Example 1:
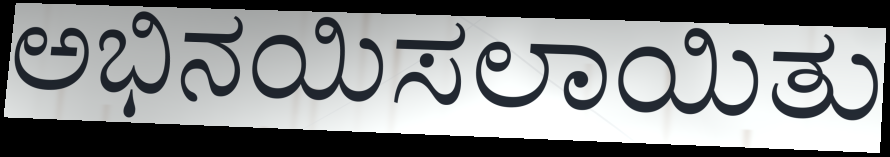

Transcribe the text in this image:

ಅಭಿನಯಿಸಲಾಯಿತು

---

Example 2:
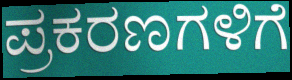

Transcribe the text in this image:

ಪ್ರಕರಣಗಳಿಗೆ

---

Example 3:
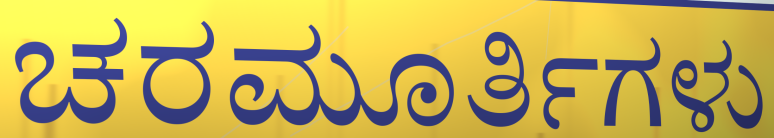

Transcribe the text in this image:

ಚರಮೂರ್ತಿಗಳು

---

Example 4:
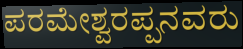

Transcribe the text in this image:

ಪರಮೇಶ್ವರಪ್ಪನವರು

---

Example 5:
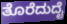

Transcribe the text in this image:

ತೊರೆದುದೈ